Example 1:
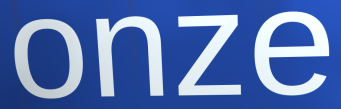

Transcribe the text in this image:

onze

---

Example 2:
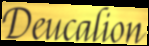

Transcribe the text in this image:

Deucalion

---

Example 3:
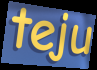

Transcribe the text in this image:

teju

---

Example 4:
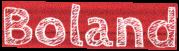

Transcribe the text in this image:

Boland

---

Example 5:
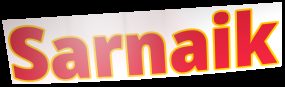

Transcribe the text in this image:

Sarnaik